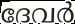
ദേവർ